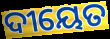
ଦୀୟେତ